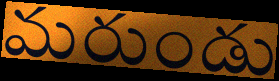
మరుండు